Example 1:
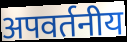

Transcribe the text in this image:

अपवर्तनीय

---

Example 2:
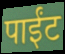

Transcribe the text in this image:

पाईंट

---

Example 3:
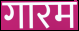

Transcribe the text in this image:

गारम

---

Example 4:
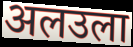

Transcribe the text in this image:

अलउला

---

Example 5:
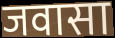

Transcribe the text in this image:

जवासा